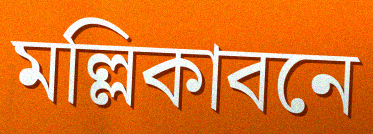
মল্লিকাবনে